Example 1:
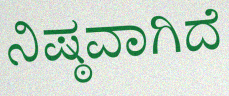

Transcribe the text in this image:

ನಿಷ್ಠವಾಗಿದೆ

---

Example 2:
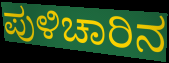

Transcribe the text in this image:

ಪುಳಿಚಾರಿನ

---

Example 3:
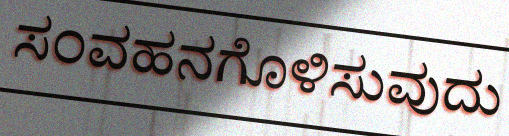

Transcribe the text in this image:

ಸಂವಹನಗೊಳಿಸುವುದು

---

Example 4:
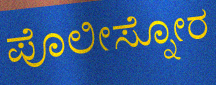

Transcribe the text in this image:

ಪೊಲೀಸ್ನೋರ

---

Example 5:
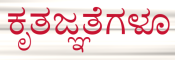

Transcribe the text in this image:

ಕೃತಜ್ಞತೆಗಳೂ